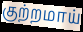
குற்றமாய்